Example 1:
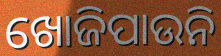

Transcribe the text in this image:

ଖୋଜିପାଉନି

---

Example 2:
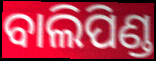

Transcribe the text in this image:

ବାଲିପିଣ୍ଡ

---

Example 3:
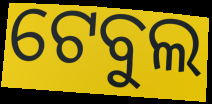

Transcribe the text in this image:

ଟେବୁଲ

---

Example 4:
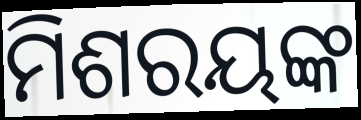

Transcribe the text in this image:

ମିଶରୟଙ୍କ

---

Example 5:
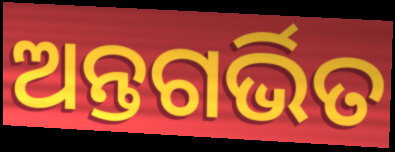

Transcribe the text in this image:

ଅନ୍ତଗର୍ଭିତ